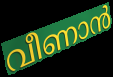
വീണാൻ